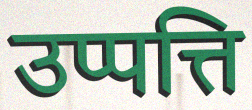
उप्पत्ति